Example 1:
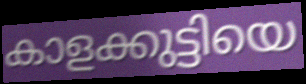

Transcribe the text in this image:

കാളക്കുട്ടിയെ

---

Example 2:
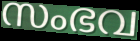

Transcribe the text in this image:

സംഭവ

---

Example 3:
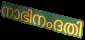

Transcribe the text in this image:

നാഭിനംദതി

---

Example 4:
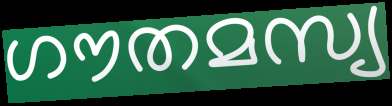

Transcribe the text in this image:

ഗൗതമസ്യ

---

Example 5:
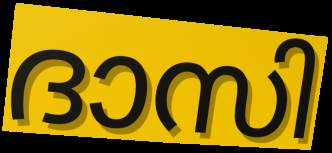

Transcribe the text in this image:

ദാസി